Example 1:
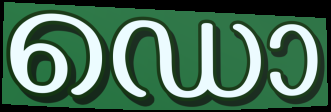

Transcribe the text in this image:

ഡൊ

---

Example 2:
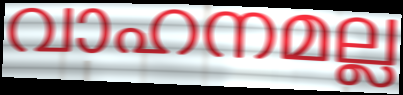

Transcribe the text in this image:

വാഹനമല്ല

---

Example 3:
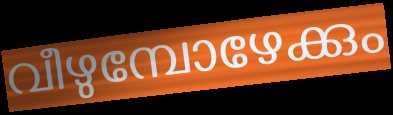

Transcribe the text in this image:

വീഴുമ്പോഴേക്കും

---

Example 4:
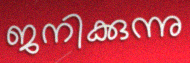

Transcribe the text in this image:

ജനിക്കുന്നു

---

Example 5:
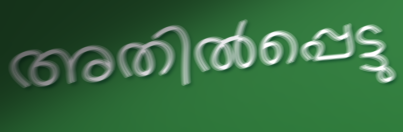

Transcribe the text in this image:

അതിൽപ്പെട്ടു